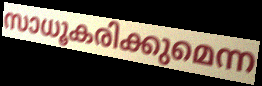
സാധൂകരിക്കുമെന്ന